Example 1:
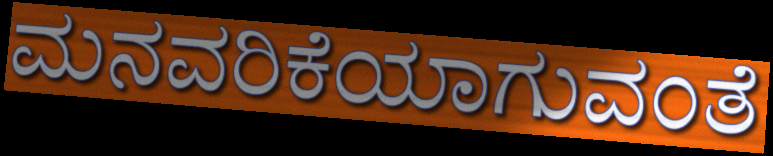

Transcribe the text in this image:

ಮನವರಿಕೆಯಾಗುವಂತೆ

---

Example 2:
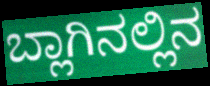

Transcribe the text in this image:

ಬ್ಲಾಗಿನಲ್ಲಿನ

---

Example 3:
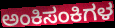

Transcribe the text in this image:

ಅಂಕಿಸಂಕಿಗಳ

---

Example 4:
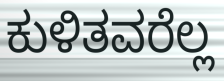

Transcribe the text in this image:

ಕುಳಿತವರೆಲ್ಲ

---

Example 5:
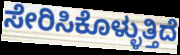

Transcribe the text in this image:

ಸೇರಿಸಿಕೊಳ್ಳುತ್ತಿದೆ